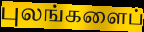
புலங்களைப்